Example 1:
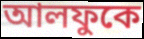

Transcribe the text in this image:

আলফুকে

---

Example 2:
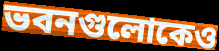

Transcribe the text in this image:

ভবনগুলোকেও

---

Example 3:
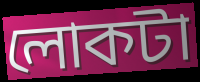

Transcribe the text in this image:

লোকটা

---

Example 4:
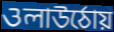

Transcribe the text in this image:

ওলাউঠোয়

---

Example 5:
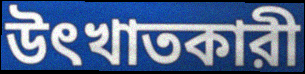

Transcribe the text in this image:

উৎখাতকারী